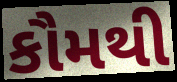
કૌમથી